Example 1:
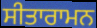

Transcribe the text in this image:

ਸੀਤਾਰਾਮਨ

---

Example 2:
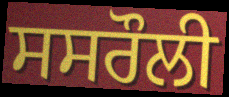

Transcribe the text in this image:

ਸਸਰੌਲੀ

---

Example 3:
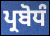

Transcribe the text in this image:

ਪ੍ਰਬੋਧੰ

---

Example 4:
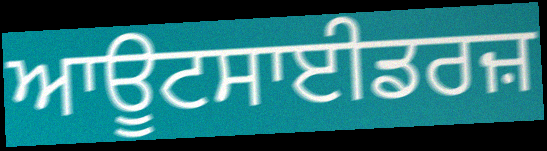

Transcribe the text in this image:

ਆਊਟਸਾਈਡਰਜ਼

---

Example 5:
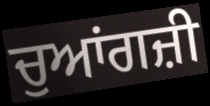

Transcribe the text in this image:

ਚੁਆਂਗਜ਼ੀ